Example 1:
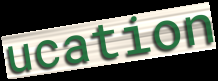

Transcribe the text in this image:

ucation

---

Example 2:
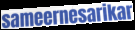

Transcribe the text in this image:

sameernesarikar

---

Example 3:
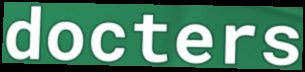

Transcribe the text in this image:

docters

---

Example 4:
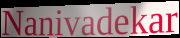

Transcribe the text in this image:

Nanivadekar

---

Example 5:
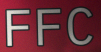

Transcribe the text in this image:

FFC